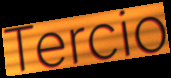
Tercio